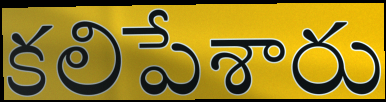
కలిపేశారు